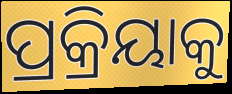
ପ୍ରକ୍ରିୟାକୁ